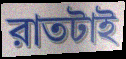
রাতটাই